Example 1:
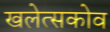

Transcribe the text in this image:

खलेत्सकोव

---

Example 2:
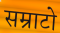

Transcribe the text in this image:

सम्राटो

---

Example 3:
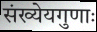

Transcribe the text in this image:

संख्येयगुणाः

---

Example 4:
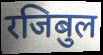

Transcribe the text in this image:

रजिबुल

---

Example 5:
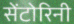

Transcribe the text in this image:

सेंटोरिनी